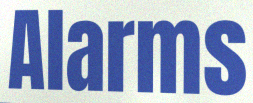
Alarms